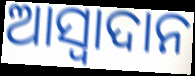
ଆସ୍ୱାଦାନ